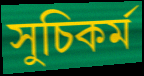
সুচিকর্ম